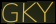
GKY